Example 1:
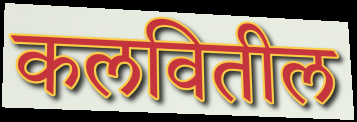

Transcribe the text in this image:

कलवितील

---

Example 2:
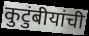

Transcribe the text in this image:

कुटुंबीयांची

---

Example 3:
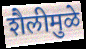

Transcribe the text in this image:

शैलीमुळे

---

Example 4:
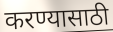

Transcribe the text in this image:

करण्यासाठी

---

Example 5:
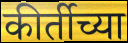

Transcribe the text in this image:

कीर्तीच्या